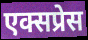
एक्सप्रेस